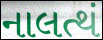
નાલત્થં